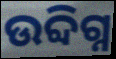
ଉବ୍ଦିଗ୍ନ